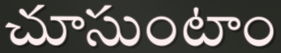
చూసుంటాం